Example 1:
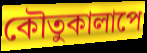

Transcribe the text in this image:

কৌতুকালাপে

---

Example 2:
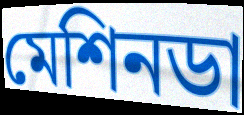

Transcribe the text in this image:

মেশিনডা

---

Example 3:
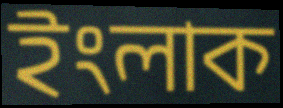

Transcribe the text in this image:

ইংলাক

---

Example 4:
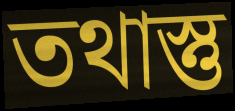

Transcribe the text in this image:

তথাস্তু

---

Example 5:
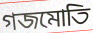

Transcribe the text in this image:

গজমোতি